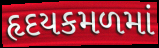
હૃદયકમળમાં